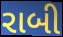
રાબી